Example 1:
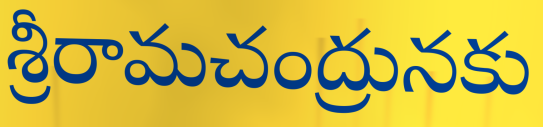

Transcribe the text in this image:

శ్రీరామచంద్రునకు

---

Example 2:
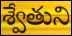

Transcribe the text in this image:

శ్వేతుని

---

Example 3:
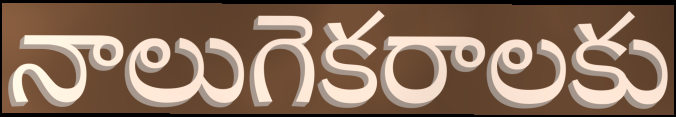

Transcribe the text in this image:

నాలుగెకరాలకు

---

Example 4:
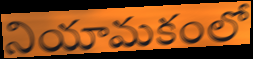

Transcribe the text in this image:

నియామకంలో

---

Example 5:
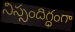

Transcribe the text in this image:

నిస్సందిగ్ధంగా